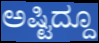
ಅಷ್ಟಿದ್ದೂ